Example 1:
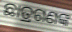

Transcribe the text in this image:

ଛାତ୍ରଗଣଙ୍କ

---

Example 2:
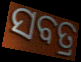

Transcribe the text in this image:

ସବତ୍ର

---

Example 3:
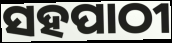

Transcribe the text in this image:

ସହପାଠୀ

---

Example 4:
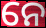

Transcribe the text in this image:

ନେ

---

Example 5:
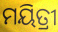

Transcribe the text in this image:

ମୟିତ୍ରୀ